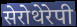
सेरोथेरेपी